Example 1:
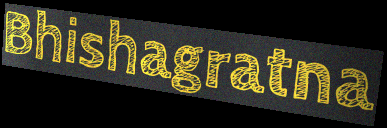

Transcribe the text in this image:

Bhishagratna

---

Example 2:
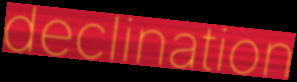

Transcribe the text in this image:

declination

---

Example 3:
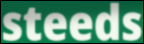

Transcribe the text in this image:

steeds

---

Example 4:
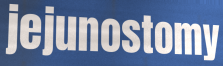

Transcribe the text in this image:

jejunostomy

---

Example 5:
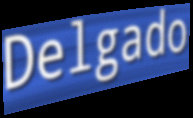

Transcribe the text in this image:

Delgado